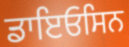
ਡਾਇਓਸਿਨ